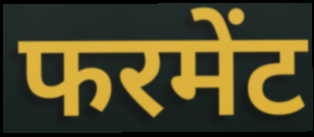
फरमेंट